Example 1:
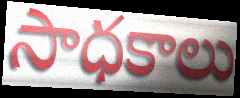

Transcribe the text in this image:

సాధకాలు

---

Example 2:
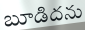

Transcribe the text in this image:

బూడిదను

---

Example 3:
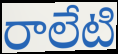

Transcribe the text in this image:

రాలేటి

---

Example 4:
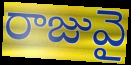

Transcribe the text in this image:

రాజువై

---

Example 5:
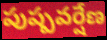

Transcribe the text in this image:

పుష్పవర్షేణ